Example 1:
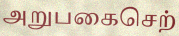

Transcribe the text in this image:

அறுபகைசெற்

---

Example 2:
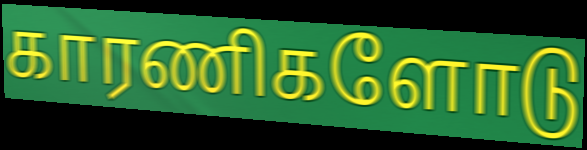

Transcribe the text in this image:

காரணிகளோடு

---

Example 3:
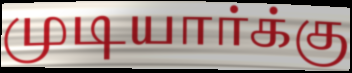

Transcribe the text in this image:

முடியார்க்கு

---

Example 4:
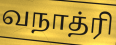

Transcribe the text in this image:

வநாத்ரி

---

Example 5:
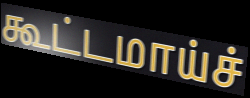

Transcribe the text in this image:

கூட்டமாய்ச்